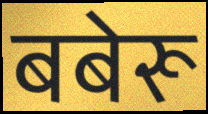
बबेरू